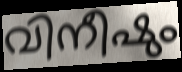
വിനീഷും